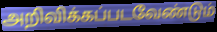
அறிவிக்கப்படவேண்டும்